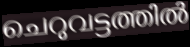
ചെറുവട്ടത്തിൽ